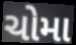
ચોમા